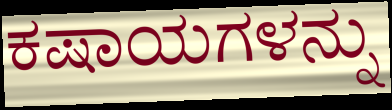
ಕಷಾಯಗಳನ್ನು